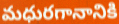
మధురగానానికి